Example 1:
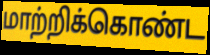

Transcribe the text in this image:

மாற்றிக்கொண்ட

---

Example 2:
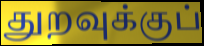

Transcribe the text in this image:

துறவுக்குப்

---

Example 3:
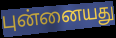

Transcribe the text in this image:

புன்னையது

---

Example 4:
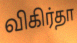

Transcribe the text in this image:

விகிர்தா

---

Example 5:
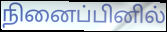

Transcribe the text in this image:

நினைப்பினில்